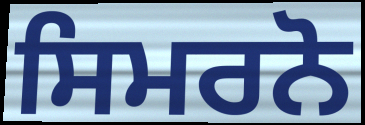
ਸਿਮਰਨੋ